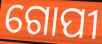
ଗୋପୀ